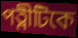
পত্নীটিকে